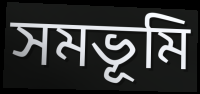
সমভূমি